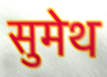
सुमेथ